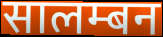
सालम्बन